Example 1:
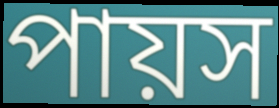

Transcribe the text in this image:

পায়স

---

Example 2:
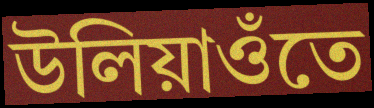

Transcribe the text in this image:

উলিয়াওঁতে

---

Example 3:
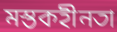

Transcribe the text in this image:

মস্তকহীনতা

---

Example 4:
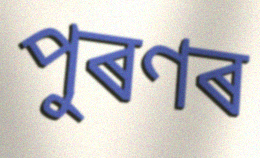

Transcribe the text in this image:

পুৰণৰ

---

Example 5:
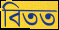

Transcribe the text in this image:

বিতত